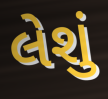
લેશું